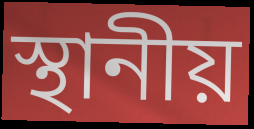
স্থানীয়